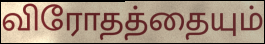
விரோதத்தையும்